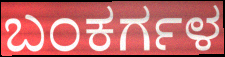
ಬಂಕರ್ಗಳ